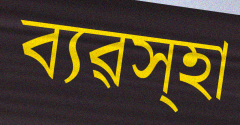
ব্যৱস্হা